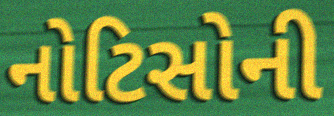
નોટિસોની